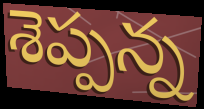
శెప్పన్న